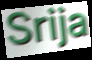
Srija